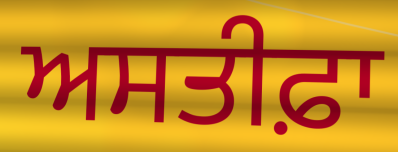
ਅਸਤੀਫ਼ਾ